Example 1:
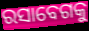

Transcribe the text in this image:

ରସାବେଗକୁ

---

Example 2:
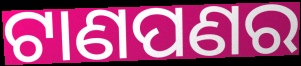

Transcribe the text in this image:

ଟାଣପଣର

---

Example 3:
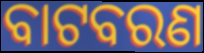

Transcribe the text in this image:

ବାଟବରଣ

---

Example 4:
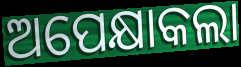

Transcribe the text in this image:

ଅପେକ୍ଷାକଲା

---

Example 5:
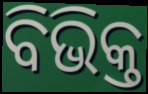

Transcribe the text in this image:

ବିଭିକ୍ତ